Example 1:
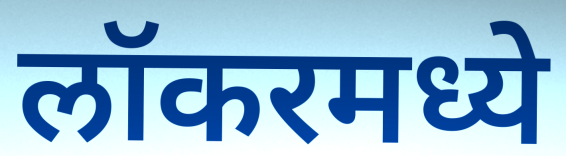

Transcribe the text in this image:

लॉकरमध्ये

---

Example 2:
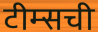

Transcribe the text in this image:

टीम्सची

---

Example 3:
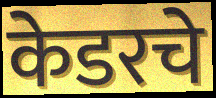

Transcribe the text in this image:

केडरचे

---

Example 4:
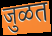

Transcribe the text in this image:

जुळत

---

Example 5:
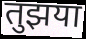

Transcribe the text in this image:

तुझया